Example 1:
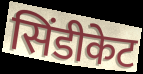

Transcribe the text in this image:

सिंडीकेट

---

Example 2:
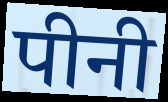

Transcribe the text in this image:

पीनी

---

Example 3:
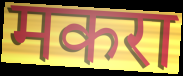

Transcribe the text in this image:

मकरा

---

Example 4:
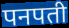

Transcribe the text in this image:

पनपती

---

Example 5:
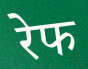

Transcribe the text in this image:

रेफ